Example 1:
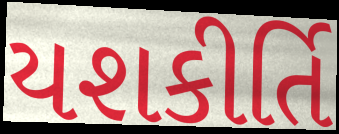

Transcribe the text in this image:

યશકીર્તિ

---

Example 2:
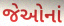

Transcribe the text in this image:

જેઓનાં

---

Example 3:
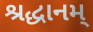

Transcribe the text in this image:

શ્રદ્ધાનમ્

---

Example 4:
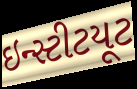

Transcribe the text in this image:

ઇન્સ્ટીટયૂટ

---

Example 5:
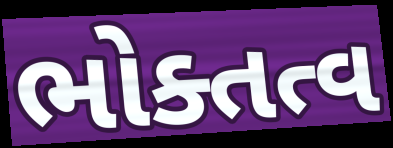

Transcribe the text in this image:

ભોક્તત્વ